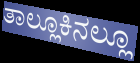
ತಾಲ್ಲೂಕಿನಲ್ಲೂ